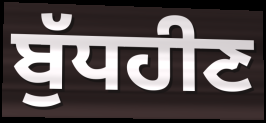
ਬੁੱਧਹੀਣ